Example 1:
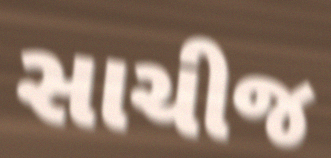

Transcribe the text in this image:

સાચીજ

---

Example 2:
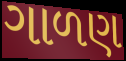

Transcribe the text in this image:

ગાળણ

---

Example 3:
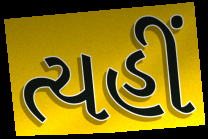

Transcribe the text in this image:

ત્યહીં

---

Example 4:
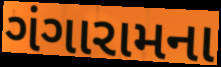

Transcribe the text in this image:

ગંગારામના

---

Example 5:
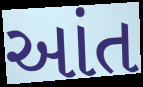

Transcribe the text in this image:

આંત